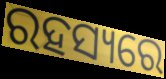
ରହସ୍ୟରେ